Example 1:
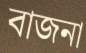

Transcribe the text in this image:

বাজনা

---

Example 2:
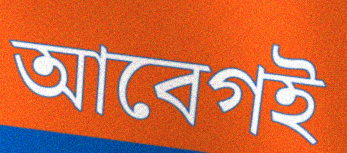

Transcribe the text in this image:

আবেগই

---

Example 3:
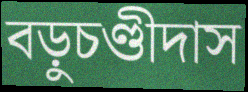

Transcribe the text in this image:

বড়ুচণ্ডীদাস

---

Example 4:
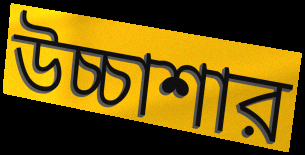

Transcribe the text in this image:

উচ্চাশার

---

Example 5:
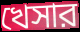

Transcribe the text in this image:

খেসার